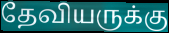
தேவியருக்கு